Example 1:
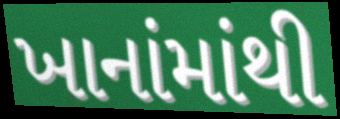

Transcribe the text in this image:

ખાનાંમાંથી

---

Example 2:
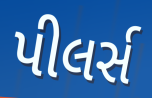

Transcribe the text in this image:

પીલર્સ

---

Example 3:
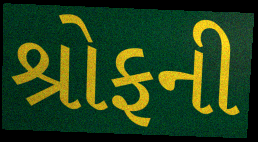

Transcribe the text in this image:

શ્રોફની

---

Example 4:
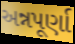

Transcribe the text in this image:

અન્નપૂર્ણા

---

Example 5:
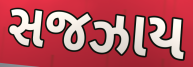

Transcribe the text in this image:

સજઝાય